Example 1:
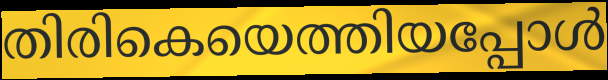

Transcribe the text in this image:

തിരികെയെത്തിയപ്പോൾ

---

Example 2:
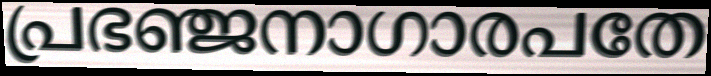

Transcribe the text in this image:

പ്രഭഞ്ജനാഗാരപതേ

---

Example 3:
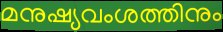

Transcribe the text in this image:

മനുഷ്യവംശത്തിനും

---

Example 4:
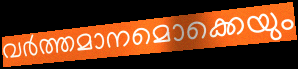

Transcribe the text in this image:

വർത്തമാനമൊക്കെയും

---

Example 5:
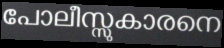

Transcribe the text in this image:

പോലീസ്സുകാരനെ